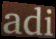
adi